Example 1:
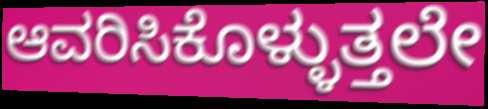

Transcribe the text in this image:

ಆವರಿಸಿಕೊಳ್ಳುತ್ತಲೇ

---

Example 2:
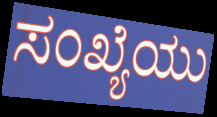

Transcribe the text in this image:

ಸಂಖ್ಯೆಯು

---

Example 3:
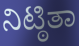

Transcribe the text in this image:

ನಿಟ್ಠಿತಾ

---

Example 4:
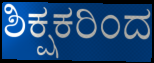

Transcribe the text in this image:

ಶಿಕ್ಷಕರಿಂದ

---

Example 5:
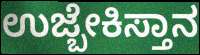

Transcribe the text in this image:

ಉಜ್ಬೇಕಿಸ್ತಾನ